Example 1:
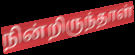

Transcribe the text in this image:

நின்றிருந்தாள்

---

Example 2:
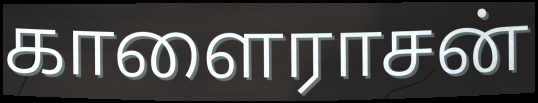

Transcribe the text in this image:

காளைராசன்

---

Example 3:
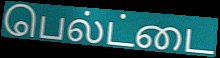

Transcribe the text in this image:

பெல்ட்டை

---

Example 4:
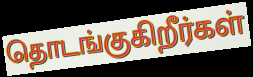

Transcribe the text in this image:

தொடங்குகிறீர்கள்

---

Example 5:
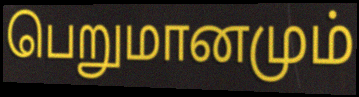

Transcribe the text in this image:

பெறுமானமும்